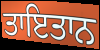
ਤਾਇਤਾਨ